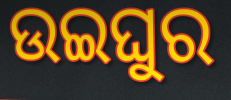
ଉଇଘୁର